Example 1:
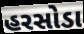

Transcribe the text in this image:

હરસોડા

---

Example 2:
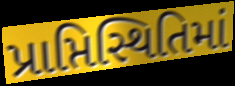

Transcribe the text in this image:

પ્રાપ્તિસ્થિતિમાં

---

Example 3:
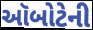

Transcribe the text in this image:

ઑબોટેની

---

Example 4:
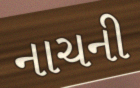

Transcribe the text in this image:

નાચની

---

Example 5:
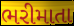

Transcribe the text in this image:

ભરીમાતા